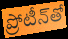
ప్రోటీన్‌తో